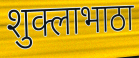
शुक्लाभाठा